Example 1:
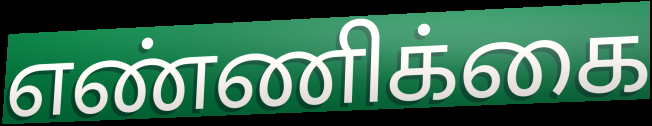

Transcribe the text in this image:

எண்ணிக்கை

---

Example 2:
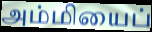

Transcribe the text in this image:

அம்மியைப்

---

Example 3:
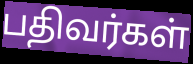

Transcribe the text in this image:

பதிவர்கள்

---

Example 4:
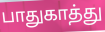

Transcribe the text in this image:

பாதுகாத்து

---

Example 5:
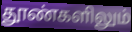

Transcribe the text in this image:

தூண்களிலும்